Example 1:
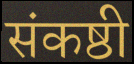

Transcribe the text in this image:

संकष्ठी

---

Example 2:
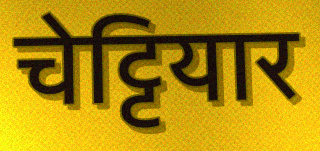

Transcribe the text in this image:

चेट्टियार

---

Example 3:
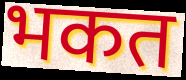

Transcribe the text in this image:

भकत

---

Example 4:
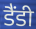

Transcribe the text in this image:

डैंडी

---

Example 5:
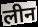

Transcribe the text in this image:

लीन